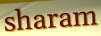
sharam